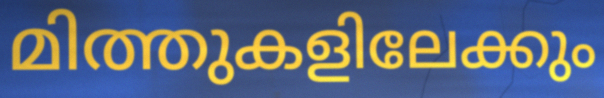
മിത്തുകളിലേക്കും